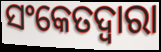
ସଂକେତଦ୍ଵାରା